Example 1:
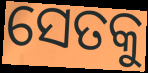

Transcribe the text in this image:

ସେତକୁ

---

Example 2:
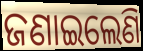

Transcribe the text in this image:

ଜଣାଇଲେଣି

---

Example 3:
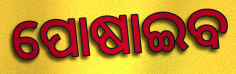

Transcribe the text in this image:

ପୋଷାଇବ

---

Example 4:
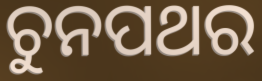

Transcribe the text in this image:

ଚୁନପଥର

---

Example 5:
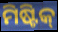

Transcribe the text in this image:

ମିଷ୍ଟିକ୍